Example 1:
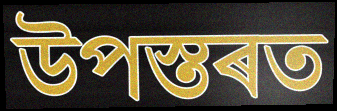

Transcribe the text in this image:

উপস্তৰত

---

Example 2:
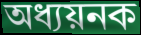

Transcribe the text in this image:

অধ্য়য়নক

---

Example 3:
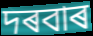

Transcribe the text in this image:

দৰবাৰ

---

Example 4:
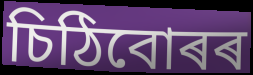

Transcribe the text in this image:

চিঠিবোৰৰ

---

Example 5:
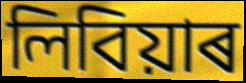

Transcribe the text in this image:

লিবিয়াৰ